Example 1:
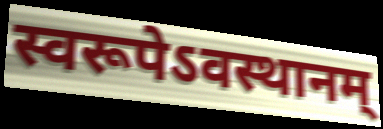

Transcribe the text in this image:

स्वरूपेऽवस्थानम्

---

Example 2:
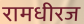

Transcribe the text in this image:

रामधीरज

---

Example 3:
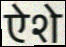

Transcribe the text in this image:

ऐशे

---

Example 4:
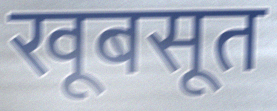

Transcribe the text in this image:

खूबसूत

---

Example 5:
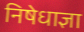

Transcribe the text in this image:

निषेधाज्ञा